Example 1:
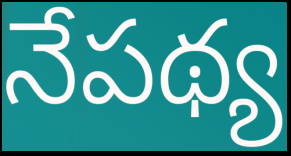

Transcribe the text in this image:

నేపథ్య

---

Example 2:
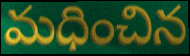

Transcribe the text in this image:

మధించిన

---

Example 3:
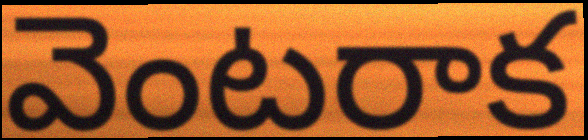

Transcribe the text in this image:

వెంటరాక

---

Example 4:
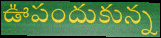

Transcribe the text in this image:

ఊపందుకున్న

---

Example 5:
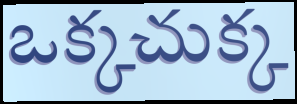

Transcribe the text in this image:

ఒక్కచుక్క